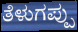
ತೆಳುಗಪ್ಪು